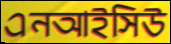
এনআইসিউ